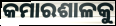
କମାରଶାଳକୁ